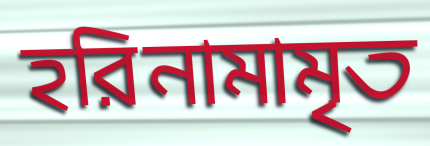
হরিনামামৃত